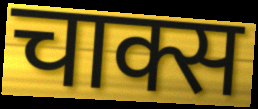
चाक्स